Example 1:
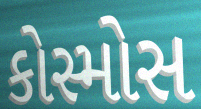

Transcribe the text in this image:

કોસ્મોસ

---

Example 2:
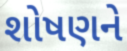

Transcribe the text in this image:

શોષણને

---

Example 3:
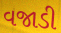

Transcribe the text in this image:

વજાડી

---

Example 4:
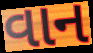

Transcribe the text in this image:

વાન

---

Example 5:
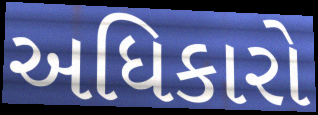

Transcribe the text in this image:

અધિકારો